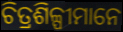
ଚିତ୍ରଶିଳ୍ପୀମାନେ